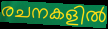
രചനകളിൽ